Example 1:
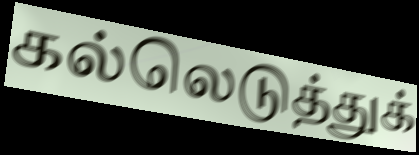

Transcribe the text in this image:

கல்லெடுத்துக்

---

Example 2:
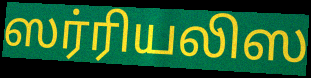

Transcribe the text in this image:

ஸர்ரியலிஸ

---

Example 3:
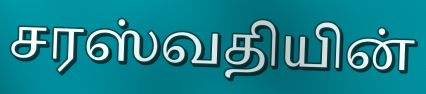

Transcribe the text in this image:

சரஸ்வதியின்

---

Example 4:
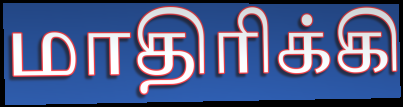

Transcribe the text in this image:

மாதிரிக்கி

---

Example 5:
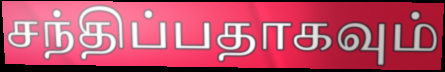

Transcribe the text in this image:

சந்திப்பதாகவும்